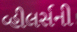
વ્હીલર્સની